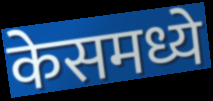
केसमध्ये